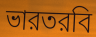
ভারতরবি